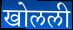
खोलली